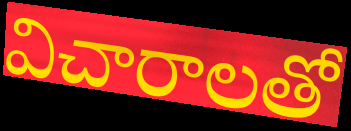
విచారాలతో